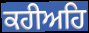
ਕਹੀਅਹਿ